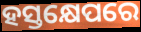
ହସ୍ତକ୍ଷେପରେ